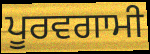
ਪੂਰਵਗਾਮੀ